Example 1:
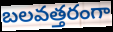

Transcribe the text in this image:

బలవత్తరంగా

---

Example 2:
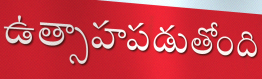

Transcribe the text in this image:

ఉత్సాహపడుతోంది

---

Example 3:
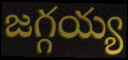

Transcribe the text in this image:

జగ్గయ్య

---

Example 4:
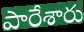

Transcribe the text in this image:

పారేశారు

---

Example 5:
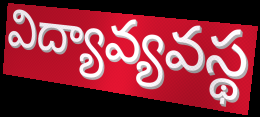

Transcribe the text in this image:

విద్యావ్యవస్థ